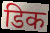
डिक